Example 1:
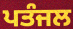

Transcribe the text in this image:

ਪਤੰਜਲ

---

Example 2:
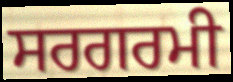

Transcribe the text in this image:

ਸਰਗਰਮੀ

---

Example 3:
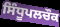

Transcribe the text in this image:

ਸਿੰਧੂਪਲਚੌਕ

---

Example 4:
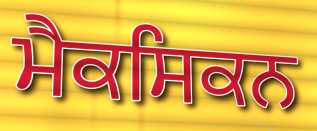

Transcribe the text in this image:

ਮੈਕਸਿਕਨ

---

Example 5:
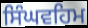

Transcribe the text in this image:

ਸਿੰਘਵਹਿਮ